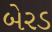
બેરડ